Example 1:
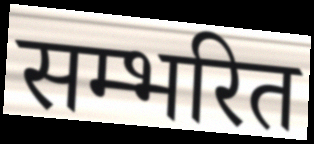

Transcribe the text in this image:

सम्भरित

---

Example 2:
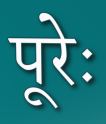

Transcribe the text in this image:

पूरेः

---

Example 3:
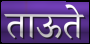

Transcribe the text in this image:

ताऊते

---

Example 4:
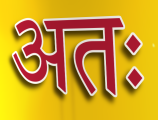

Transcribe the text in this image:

अतः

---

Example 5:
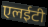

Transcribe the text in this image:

एलईटी